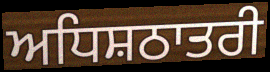
ਅਧਿਸ਼ਠਾਤਰੀ